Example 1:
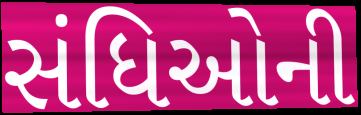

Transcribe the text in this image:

સંધિઓની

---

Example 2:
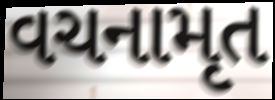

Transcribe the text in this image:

વચનામૃત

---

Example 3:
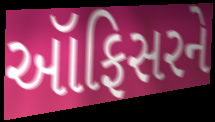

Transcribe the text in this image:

ઑફિસરને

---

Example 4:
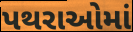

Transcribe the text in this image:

પથરાઓમાં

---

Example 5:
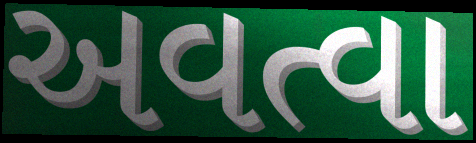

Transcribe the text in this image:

અવત્વા